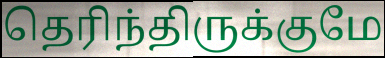
தெரிந்திருக்குமே